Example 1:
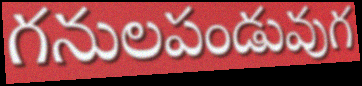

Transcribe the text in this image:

గనులపండువుగ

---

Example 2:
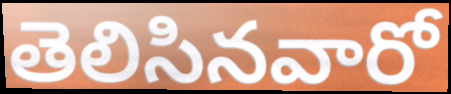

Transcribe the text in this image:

తెలిసినవారో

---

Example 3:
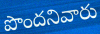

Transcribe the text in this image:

పొందనివారు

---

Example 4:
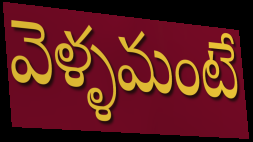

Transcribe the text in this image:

వెళ్ళమంటే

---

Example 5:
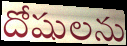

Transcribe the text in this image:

దోషులను